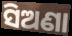
ସିଅଣା